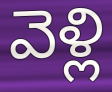
వెళ్లి